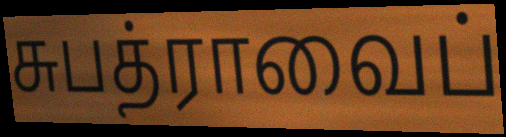
சுபத்ராவைப்